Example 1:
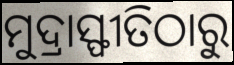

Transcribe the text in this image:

ମୁଦ୍ରାସ୍ଫୀତିଠାରୁ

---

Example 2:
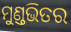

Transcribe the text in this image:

ମୁଣ୍ଡଭିତର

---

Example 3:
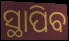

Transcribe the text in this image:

ସ୍ଥାପିବ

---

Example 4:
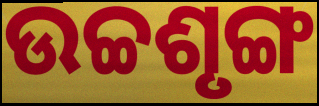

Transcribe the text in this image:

ଉଚ୍ଚଶୃଙ୍ଗ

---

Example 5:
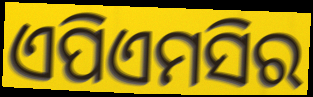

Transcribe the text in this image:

ଏପିଏମସିର